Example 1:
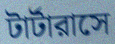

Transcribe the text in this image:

টার্টারাসে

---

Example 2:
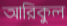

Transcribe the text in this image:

আরিকুল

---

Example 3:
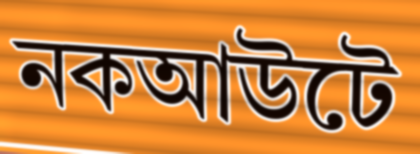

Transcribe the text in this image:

নকআউটে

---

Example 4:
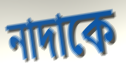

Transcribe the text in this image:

নাদাকে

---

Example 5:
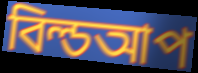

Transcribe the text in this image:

বিল্ডআপ